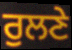
ਰੁਲਣੇ